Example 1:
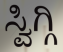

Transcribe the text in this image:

ಸ್ವಿಗ್ಗಿ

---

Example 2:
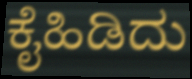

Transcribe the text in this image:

ಕೈಹಿಡಿದು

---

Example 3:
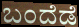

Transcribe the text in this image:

ಬಂದೆಡೆ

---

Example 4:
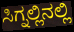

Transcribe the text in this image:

ಸಿಗ್ನಲ್ಲಿನಲ್ಲಿ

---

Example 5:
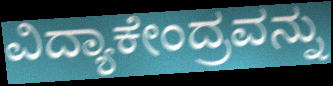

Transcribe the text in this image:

ವಿದ್ಯಾಕೇಂದ್ರವನ್ನು